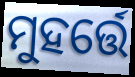
ମୁହର୍ତ୍ତେ